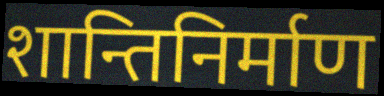
शान्तिनिर्माण